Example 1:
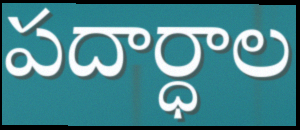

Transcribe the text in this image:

పదార్ధాల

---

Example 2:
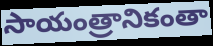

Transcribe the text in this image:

సాయంత్రానికంతా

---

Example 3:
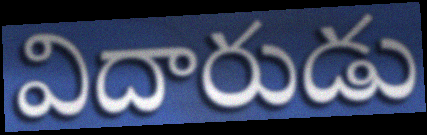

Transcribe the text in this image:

విదారుడు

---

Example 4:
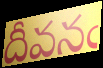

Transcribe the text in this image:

దీవనఁ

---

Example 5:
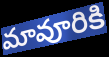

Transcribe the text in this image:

మావూరికి